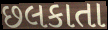
છલકાતા